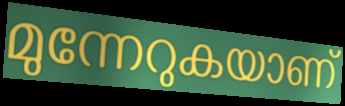
മുന്നേറുകയാണ്